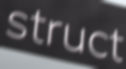
struct